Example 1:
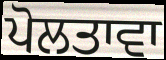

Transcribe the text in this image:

ਪੋਲਤਾਵਾ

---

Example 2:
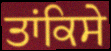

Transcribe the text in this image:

ਤਾਂਕਿਸੇ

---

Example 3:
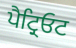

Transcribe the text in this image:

ਪੈਟ੍ਰਿਓਟ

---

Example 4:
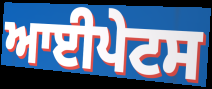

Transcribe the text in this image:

ਆਈਪੇਟਸ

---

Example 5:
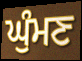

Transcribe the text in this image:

ਘੁੰਮਣ